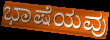
ಭಾಷೆಯವು